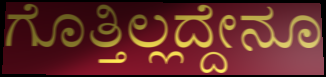
ಗೊತ್ತಿಲ್ಲದ್ದೇನೂ